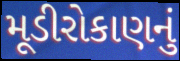
મૂડીરોકાણનું